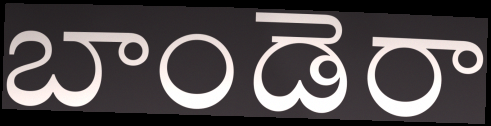
బాండెరా